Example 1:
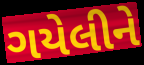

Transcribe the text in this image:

ગયેલીને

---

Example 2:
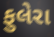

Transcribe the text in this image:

ફુલેરા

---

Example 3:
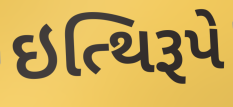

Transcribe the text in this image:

ઇત્થિરૂપે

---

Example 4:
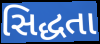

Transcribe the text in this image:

સિદ્ધતા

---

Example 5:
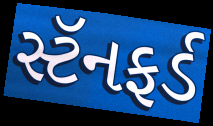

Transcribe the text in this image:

સ્ટૅનફર્ડ